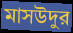
মাসউদুর